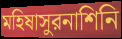
মহিষাসুরনাশিনি